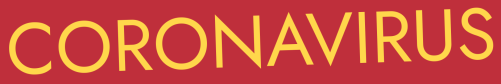
CORONAVIRUS